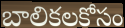
బాలికలకోసం